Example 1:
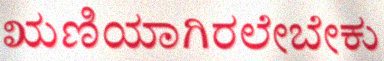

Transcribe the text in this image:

ಋಣಿಯಾಗಿರಲೇಬೇಕು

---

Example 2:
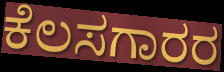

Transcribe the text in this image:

ಕೆಲಸಗಾರರ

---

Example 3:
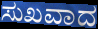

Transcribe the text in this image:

ಸುಖವಾದ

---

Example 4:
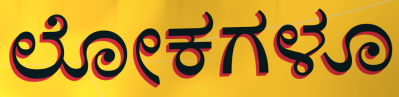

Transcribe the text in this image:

ಲೋಕಗಳೂ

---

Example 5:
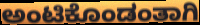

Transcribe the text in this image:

ಅಂಟಿಕೊಂಡಂತಾಗಿ